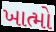
ખાત્મો